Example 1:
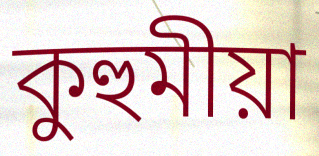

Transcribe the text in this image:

কুহুমীয়া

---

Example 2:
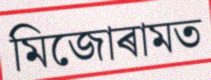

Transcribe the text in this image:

মিজোৰামত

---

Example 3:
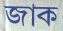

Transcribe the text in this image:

জাক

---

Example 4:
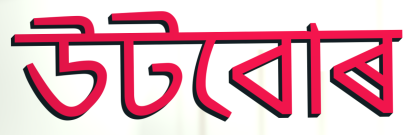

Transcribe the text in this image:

উটবোৰ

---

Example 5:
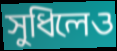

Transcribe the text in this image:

সুধিলেও